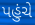
પહુંચે